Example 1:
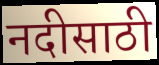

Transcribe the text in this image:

नदीसाठी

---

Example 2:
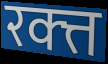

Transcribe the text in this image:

रक्त्त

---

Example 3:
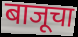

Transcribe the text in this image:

बाजूचा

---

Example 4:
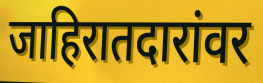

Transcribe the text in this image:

जाहिरातदारांवर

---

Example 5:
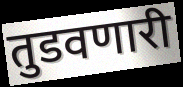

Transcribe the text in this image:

तुडवणारी